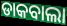
ଡାକବାଲା